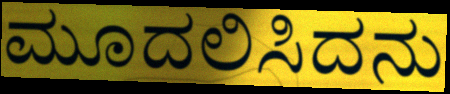
ಮೂದಲಿಸಿದನು